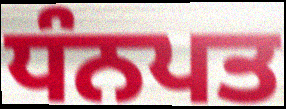
ਧੰਨਪਤ